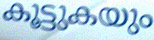
കൂട്ടുകയും